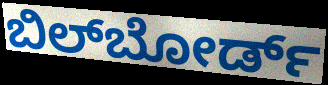
ಬಿಲ್‌ಬೋರ್ಡ್